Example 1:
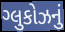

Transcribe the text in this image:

ગ્લુકોઝનું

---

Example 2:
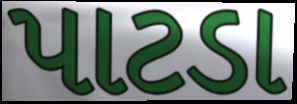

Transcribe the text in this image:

પાટડા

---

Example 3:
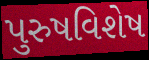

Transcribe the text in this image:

પુરુષવિશેષ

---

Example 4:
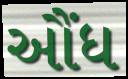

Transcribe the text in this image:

ઔંધ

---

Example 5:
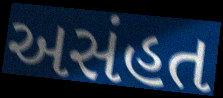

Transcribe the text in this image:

અસંહત